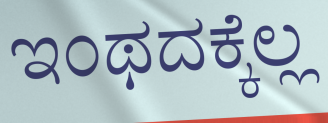
ಇಂಥದಕ್ಕೆಲ್ಲ